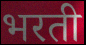
भरती